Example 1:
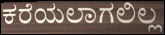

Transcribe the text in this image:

ಕರೆಯಲಾಗಲಿಲ್ಲ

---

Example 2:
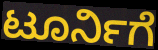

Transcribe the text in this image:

ಟೂರ್ನಿಗೆ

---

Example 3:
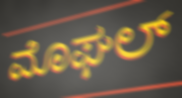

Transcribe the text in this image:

ಮೊಘಲ್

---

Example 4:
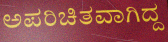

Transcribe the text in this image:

ಅಪರಿಚಿತವಾಗಿದ್ದ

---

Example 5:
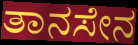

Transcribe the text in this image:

ತಾನಸೇನ